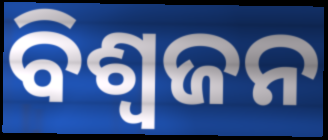
ବିଶ୍ଵଜନ